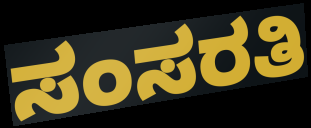
ಸಂಸರತಿ